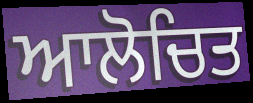
ਆਲੋਚਿਤ